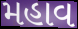
મહાવ